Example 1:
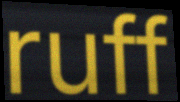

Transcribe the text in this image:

ruff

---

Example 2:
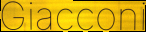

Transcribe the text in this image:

Giacconi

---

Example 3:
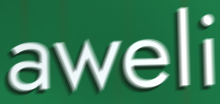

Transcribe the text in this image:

aweli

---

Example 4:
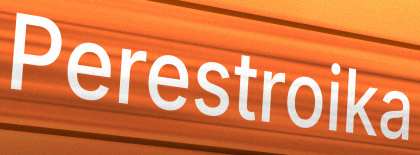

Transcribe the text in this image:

Perestroika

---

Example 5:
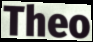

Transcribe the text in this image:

Theo